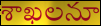
శాఖలనూ